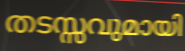
തടസ്സവുമായി